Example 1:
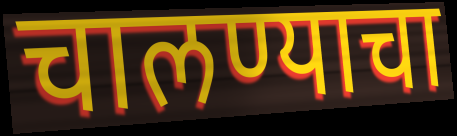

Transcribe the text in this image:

चालण्याचा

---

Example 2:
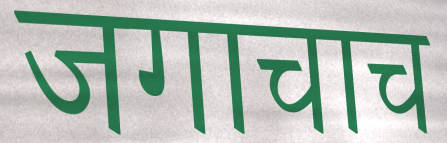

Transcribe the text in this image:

जगाचाच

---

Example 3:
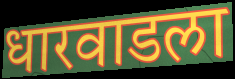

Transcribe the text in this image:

धारवाडला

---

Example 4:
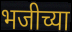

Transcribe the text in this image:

भजीच्या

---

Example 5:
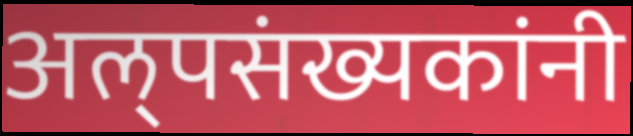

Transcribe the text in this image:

अल्पसंख्यकांनी